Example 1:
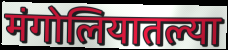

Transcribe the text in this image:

मंगोलियातल्या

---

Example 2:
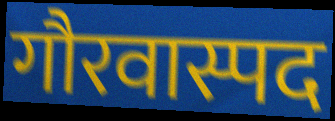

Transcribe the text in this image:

गौरवास्पद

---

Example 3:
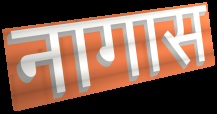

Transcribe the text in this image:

नागास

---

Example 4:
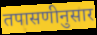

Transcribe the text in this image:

तपासणीनुसार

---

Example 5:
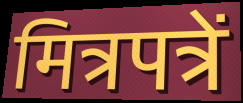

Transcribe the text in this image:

मित्रपत्रें